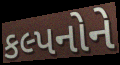
કલ્પનોને